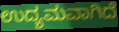
ಉದ್ಯಮವಾಗಿದೆ